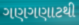
ગણગણાટથી